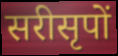
सरीसृपों